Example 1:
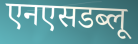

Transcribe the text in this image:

एनएसडब्लू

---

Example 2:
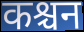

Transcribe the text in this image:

कश्चन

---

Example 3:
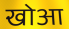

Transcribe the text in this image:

खोआ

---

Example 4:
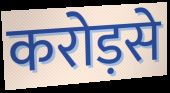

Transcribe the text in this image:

करोड़से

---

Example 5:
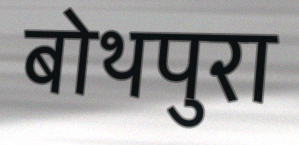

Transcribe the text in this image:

बोथपुरा